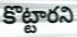
కొట్టారని